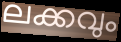
ലക്കവും